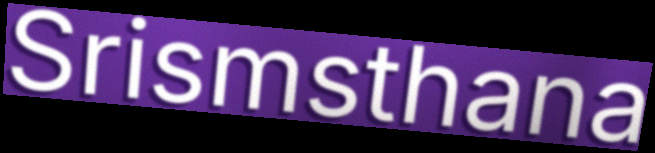
Srismsthana